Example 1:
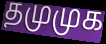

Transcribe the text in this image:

தமுமுக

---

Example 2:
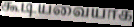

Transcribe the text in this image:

கூடியவையாக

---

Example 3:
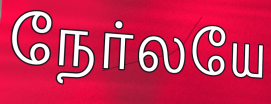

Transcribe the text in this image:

நேர்லயே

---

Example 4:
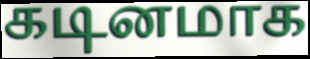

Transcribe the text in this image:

கடினமாக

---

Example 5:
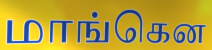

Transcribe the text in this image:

மாங்கென